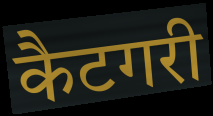
कैटगरी